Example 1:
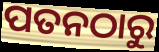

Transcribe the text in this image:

ପତନଠାରୁ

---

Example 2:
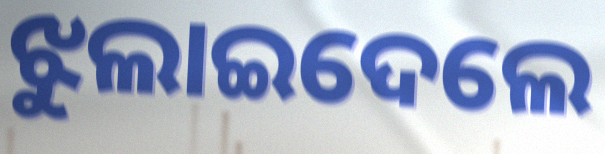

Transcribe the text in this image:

ଝୁଲାଇଦେଲେ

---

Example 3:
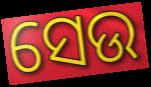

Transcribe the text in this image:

ସେଉ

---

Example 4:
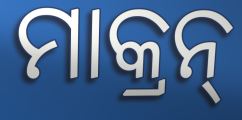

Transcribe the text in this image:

ମାକ୍ରନ୍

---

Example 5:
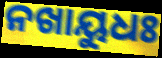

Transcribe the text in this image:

ନଖାୟୁଧଃ